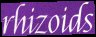
rhizoids